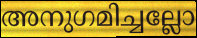
അനുഗമിച്ചല്ലോ